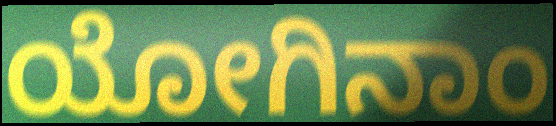
ಯೋಗಿನಾಂ